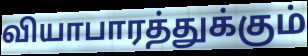
வியாபாரத்துக்கும்